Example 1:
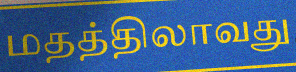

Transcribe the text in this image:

மதத்திலாவது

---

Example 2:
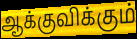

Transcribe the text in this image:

ஆக்குவிக்கும்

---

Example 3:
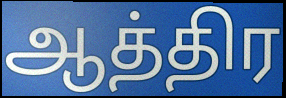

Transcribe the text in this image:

ஆத்திர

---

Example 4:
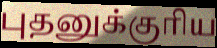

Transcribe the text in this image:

புதனுக்குரிய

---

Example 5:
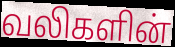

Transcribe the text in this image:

வலிகளின்